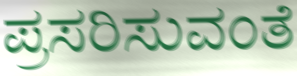
ಪ್ರಸರಿಸುವಂತೆ